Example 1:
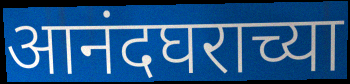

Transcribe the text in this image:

आनंदघराच्या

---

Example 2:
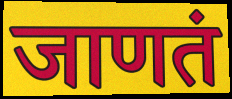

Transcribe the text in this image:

जाणतं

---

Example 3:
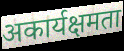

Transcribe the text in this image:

अकार्यक्षमता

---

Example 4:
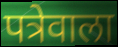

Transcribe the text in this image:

पत्रेवाला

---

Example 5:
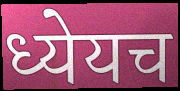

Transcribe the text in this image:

ध्येयच